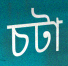
চটা